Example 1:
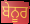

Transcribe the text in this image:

ਬੇਨੂਰ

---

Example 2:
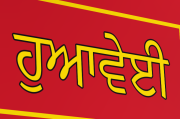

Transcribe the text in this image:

ਹੁਆਵੇਈ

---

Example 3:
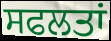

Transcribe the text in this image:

ਸਫਲਤਾਂ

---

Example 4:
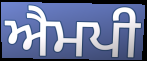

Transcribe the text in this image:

ਐਮਪੀ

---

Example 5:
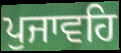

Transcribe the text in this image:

ਪੁਜਾਵਹਿ